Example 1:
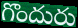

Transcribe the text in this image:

గొందురు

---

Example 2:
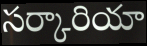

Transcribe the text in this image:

సర్కారియా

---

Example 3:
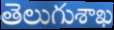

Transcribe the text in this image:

తెలుగుశాఖ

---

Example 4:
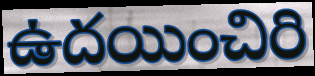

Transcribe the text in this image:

ఉదయించిరి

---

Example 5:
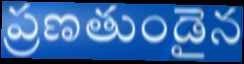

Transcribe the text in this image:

ప్రణతుండైన